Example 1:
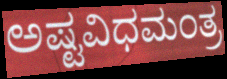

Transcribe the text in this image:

ಅಷ್ಟವಿಧಮಂತ್ರ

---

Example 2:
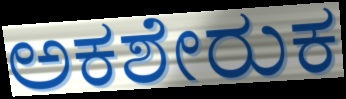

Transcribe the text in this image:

ಅಕಶೇರುಕ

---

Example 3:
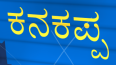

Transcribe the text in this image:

ಕನಕಪ್ಪ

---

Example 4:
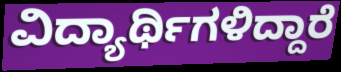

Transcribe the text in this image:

ವಿದ್ಯಾರ್ಥಿಗಳಿದ್ದಾರೆ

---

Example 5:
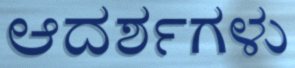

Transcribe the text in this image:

ಆದರ್ಶಗಳು